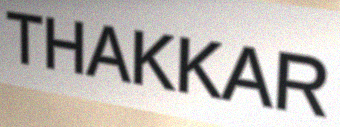
THAKKAR